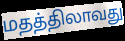
மதத்திலாவது